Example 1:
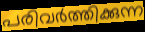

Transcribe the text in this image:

പരിവർത്തിക്കുന്ന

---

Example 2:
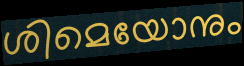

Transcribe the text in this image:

ശിമെയോനും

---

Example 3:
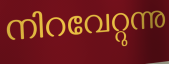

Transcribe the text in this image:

നിറവേറ്റുന്നു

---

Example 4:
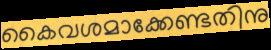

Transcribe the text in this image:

കൈവശമാക്കേണ്ടതിനു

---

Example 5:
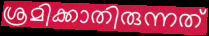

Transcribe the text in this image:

ശ്രമിക്കാതിരുന്നത്